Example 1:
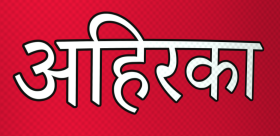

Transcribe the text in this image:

अहिरका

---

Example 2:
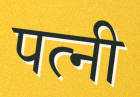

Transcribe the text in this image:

पत्नी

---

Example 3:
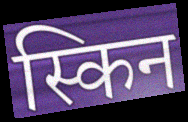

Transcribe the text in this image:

स्किन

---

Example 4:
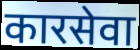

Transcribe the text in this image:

कारसेवा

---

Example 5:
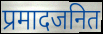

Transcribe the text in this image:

प्रमादजनित